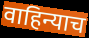
वाहिन्याच